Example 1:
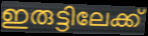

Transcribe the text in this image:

ഇരുട്ടിലേക്ക്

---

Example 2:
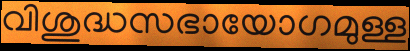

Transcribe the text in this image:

വിശുദ്ധസഭായോഗമുള്ള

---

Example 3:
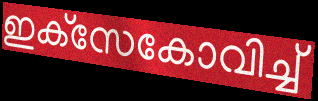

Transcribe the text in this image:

ഇക്‌സേകോവിച്ച്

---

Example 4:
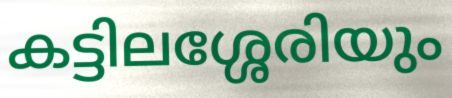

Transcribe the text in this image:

കട്ടിലശ്ശേരിയും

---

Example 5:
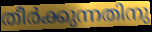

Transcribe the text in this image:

തീർക്കുന്നതിനു